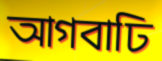
আগবাঢি